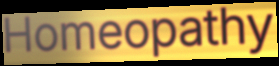
Homeopathy